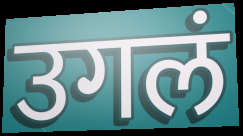
उगलं